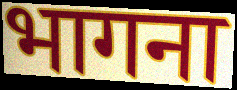
भागना